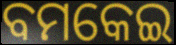
ବମକେଇ